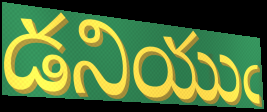
డనియుఁ